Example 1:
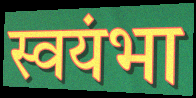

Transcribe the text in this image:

स्वयंभा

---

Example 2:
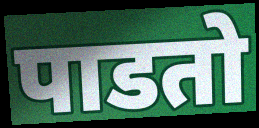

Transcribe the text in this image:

पाडतो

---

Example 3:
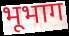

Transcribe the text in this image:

भूभाग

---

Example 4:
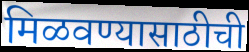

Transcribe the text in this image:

मिळवण्यासाठीची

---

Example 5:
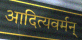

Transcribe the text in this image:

आदित्यवर्मन्